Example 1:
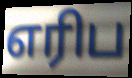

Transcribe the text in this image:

எரிப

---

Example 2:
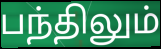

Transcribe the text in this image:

பந்திலும்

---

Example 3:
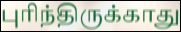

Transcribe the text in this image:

புரிந்திருக்காது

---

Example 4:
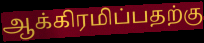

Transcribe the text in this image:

ஆக்கிரமிப்பதற்கு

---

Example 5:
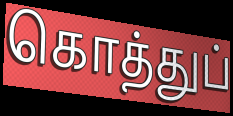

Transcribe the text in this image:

கொத்துப்